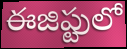
ఈజిప్టులో